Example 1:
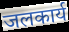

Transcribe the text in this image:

जलकार्य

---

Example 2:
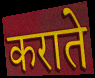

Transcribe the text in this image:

कराते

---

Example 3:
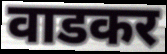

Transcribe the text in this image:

वाडकर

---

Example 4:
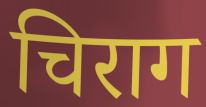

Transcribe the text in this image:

चिराग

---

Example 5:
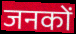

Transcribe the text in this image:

जनकों